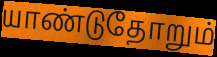
யாண்டுதோறும்